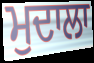
ਮੁਦਾਲਾ